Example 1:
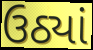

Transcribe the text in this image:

ઉઠ્યાં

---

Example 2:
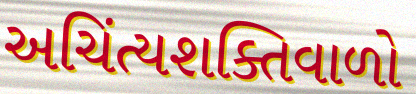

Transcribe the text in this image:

અચિંત્યશક્તિવાળો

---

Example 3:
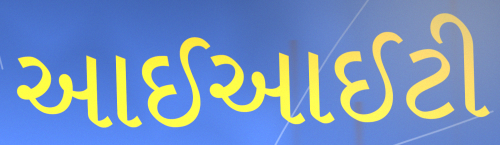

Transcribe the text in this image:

આઈઆઈટી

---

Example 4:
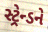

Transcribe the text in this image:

સ્ટ્રેન્ડને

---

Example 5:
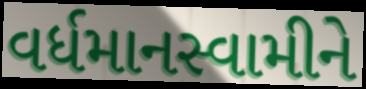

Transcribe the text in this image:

વર્ધમાનસ્વામીને